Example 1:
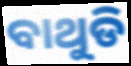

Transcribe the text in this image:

ବାଥୁଡି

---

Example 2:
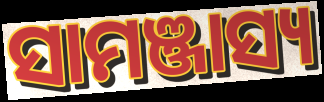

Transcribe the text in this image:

ସାମଞ୍ଜାସ୍ୟ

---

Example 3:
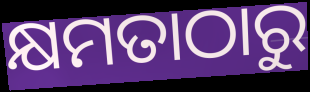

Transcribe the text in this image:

କ୍ଷମତାଠାରୁ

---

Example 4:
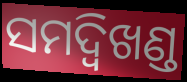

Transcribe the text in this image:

ସମଦ୍ବିଖଣ୍ଡ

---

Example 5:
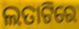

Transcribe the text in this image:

ଲତାଟିରେ